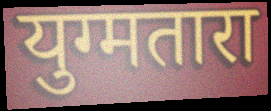
युग्मतारा